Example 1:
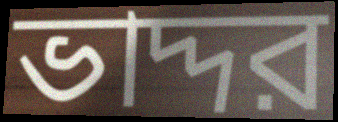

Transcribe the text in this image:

ভাদ্দর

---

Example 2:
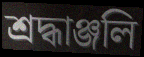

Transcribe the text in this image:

শ্রদ্ধাঞ্জলি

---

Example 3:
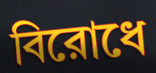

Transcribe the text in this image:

বিরোধে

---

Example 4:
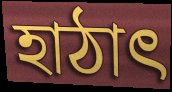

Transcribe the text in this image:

হাঠাৎ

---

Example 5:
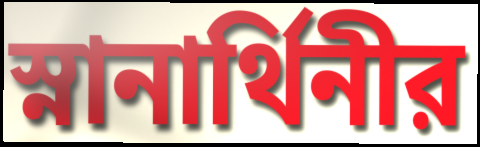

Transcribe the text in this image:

স্নানার্থিনীর